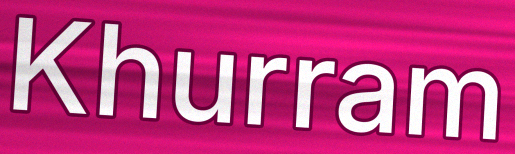
Khurram